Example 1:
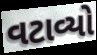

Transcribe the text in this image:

વટાવ્યો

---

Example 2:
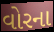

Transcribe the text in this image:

વોરના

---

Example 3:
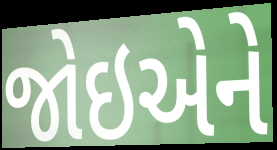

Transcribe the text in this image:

જોઇએને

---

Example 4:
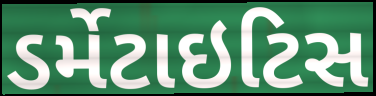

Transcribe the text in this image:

ડર્મેટાઇટિસ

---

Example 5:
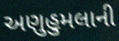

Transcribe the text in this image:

અણુહુમલાની